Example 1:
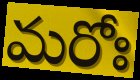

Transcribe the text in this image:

మరోః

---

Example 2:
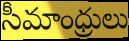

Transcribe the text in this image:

సీమాంధ్రులు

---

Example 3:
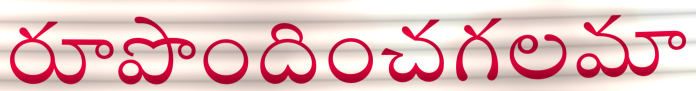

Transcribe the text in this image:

రూపొందించగలమా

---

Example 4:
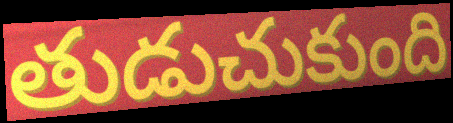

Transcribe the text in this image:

తుడుచుకుంది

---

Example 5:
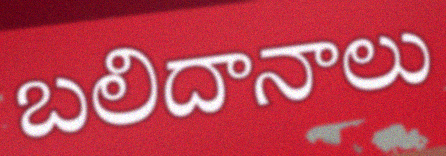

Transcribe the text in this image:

బలిదానాలు